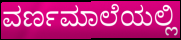
ವರ್ಣಮಾಲೆಯಲ್ಲಿ